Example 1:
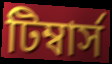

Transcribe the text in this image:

টিম্বার্স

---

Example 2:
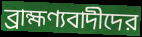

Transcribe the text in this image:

ব্রাহ্মণ্যবাদীদের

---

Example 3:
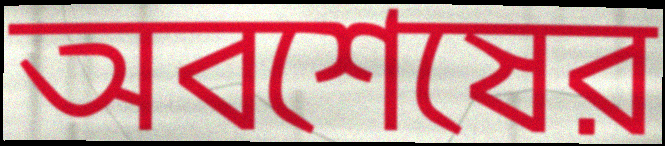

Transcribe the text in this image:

অবশেষের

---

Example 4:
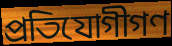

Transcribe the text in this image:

প্রতিযোগীগণ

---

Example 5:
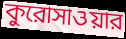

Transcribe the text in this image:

কুরোসাওয়ার